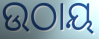
ଉଠାୟ